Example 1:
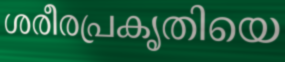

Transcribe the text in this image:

ശരീരപ്രകൃതിയെ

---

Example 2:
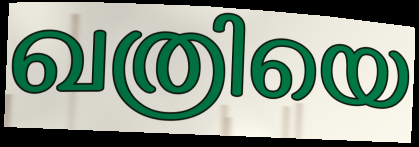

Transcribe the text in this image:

ഖത്രിയെ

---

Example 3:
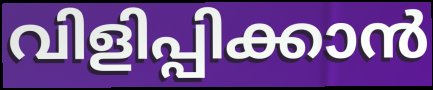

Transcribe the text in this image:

വിളിപ്പിക്കാൻ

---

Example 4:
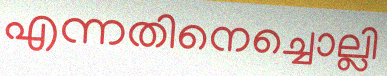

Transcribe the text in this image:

എന്നതിനെച്ചൊല്ലി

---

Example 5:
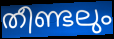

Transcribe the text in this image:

തീണ്ടലും